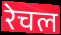
रेचल